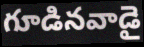
గూడినవాడై